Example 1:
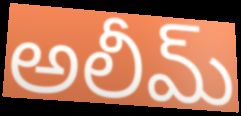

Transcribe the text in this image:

అలీమ్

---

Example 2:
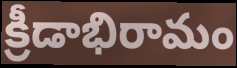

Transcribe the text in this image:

క్రీడాభిరామం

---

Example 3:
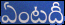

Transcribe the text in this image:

ఏంటదీ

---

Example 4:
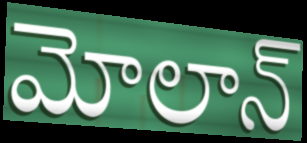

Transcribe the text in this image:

మోలాన్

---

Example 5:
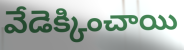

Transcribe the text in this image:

వేడెక్కించాయి